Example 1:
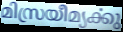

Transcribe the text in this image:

മിസ്രയീമ്യൎക്കു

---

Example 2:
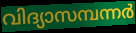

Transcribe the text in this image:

വിദ്യാസമ്പന്നർ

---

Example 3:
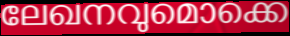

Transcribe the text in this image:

ലേഖനവുമൊക്കെ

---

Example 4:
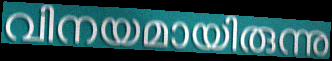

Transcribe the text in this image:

വിനയമായിരുന്നു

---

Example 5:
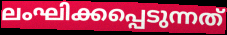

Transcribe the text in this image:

ലംഘിക്കപ്പെടുന്നത്